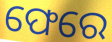
ଫେରେ